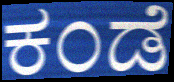
ಕಂಡೆ